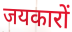
जयकारों